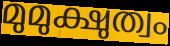
മുമുക്ഷുത്വം